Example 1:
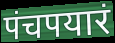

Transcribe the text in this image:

पंचपयारं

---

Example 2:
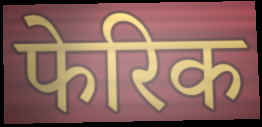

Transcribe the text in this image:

फेरिक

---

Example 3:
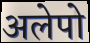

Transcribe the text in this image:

अलेपो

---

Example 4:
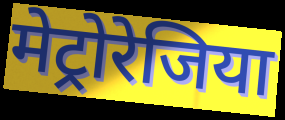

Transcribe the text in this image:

मेट्रोरेजिया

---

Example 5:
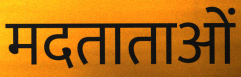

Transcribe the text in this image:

मदताताओं